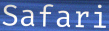
Safari